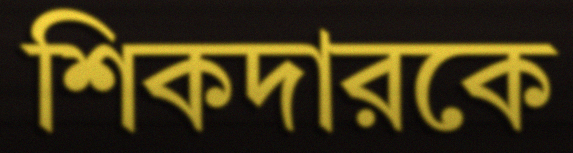
শিকদারকে